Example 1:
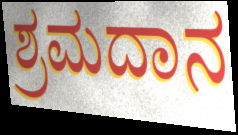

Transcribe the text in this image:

ಶ್ರಮದಾನ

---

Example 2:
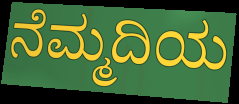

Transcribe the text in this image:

ನೆಮ್ಮದಿಯ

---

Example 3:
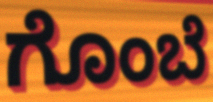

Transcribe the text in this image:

ಗೊಂಬೆ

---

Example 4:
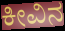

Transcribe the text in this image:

ಕೀವಿನ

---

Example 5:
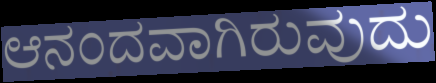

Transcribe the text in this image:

ಆನಂದವಾಗಿರುವುದು